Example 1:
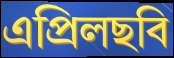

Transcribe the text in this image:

এপ্রিলছবি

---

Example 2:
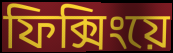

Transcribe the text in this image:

ফিক্সিংয়ে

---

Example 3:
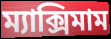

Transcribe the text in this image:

ম্যাক্সিমাম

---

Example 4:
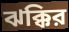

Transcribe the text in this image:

ঝক্কির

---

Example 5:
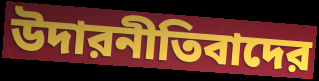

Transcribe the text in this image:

উদারনীতিবাদের